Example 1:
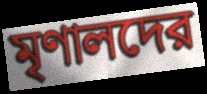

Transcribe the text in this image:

মৃণালদের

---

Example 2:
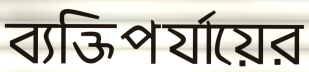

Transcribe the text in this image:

ব্যক্তিপর্যায়ের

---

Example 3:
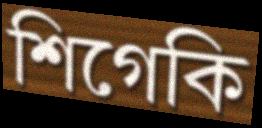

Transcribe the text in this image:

শিগেকি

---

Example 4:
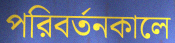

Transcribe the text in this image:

পরিবর্তনকালে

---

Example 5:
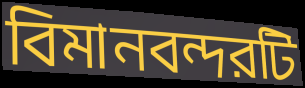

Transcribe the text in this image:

বিমানবন্দরটি